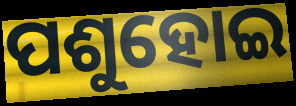
ପଶୁହୋଇ